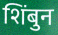
शिंबुन